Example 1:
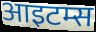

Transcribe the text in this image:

आइटम्स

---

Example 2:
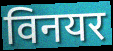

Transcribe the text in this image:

विनयर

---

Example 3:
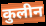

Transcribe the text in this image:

कुलीन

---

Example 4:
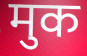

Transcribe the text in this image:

मुक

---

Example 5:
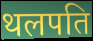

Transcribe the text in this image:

थलपति